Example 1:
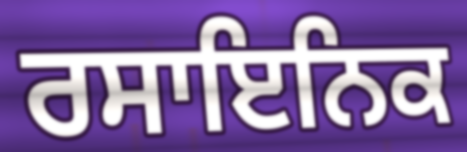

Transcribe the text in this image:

ਰਸਾਇਨਿਕ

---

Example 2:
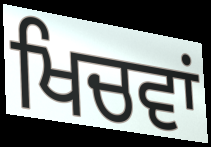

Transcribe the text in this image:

ਖਿਚਵਾਂ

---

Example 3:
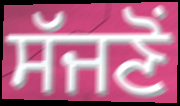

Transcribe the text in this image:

ਸੱਜਣੋਂ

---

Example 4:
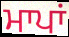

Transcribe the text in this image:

ਮਾਪਾਂ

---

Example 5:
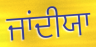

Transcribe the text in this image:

ਜਾਂਦੀਯਾ